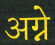
अग्ने